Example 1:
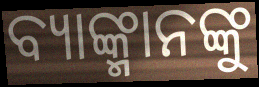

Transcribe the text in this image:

ବ୍ୟାଙ୍କ୍ମାନଙ୍କୁ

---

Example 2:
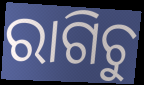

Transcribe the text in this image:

ରାଗିଚୁ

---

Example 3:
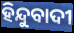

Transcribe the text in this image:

ହିନ୍ଦୁବାଦୀ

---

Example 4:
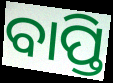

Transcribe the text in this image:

ବାପ୍ତି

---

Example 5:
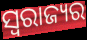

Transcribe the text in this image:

ସ୍ବରାଜ୍ୟର